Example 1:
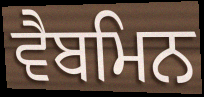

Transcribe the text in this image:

ਵੈਬਮਿਨ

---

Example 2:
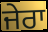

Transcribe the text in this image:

ਜੇਰਾ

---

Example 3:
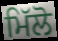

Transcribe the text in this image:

ਮਿੱਲੋ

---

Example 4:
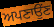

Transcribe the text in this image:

ਅਪਣਾਉਂਣ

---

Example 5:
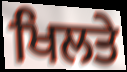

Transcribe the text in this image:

ਖਿਲਤੇ